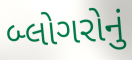
બ્લોગરોનું